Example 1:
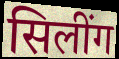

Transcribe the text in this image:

सिलींग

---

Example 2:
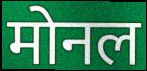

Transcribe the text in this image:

मोनल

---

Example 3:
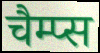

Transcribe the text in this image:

चैम्प्स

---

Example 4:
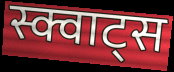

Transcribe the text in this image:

स्क्वाट्स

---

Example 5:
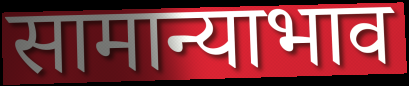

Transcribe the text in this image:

सामान्याभाव